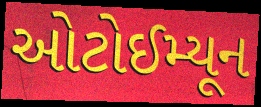
ઓટોઈમ્યૂન